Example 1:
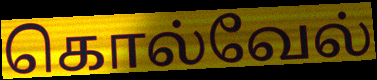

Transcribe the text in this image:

கொல்வேல்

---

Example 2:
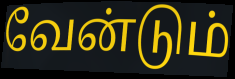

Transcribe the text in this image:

வேன்டும்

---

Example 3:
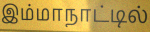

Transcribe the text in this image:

இம்மாநாட்டில்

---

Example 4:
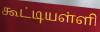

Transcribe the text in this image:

கூட்டியள்ளி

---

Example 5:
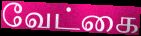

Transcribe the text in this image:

வேட்கை